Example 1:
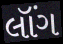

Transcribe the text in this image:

લૉંગ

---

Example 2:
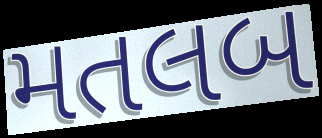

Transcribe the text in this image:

મતલબ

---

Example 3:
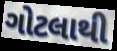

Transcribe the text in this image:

ગોટલાથી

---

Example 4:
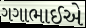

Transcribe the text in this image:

ગગાભાઈએ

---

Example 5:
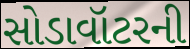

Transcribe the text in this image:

સોડાવૉટરની